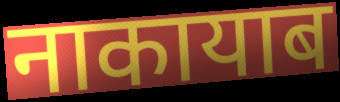
नाकायाब